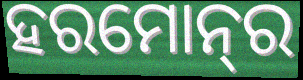
ହରମୋନ୍‍ର